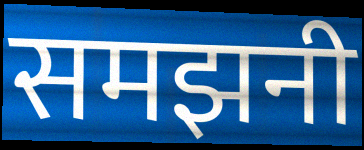
समझनी